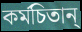
কর্মচিতান্